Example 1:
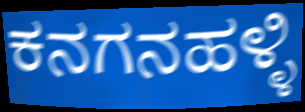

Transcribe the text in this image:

ಕನಗನಹಳ್ಳಿ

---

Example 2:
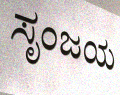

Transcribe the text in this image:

ಸೃಂಜಯ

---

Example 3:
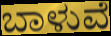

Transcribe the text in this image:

ಬಾಳುವೆ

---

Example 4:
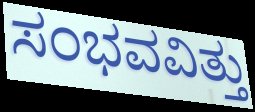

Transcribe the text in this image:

ಸಂಭವವಿತ್ತು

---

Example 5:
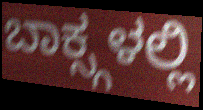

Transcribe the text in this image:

ಬಾಕ್ಸ್ಗಳಲ್ಲಿ